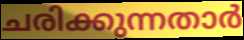
ചരിക്കുന്നതാർ